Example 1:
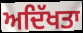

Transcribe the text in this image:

ਅਦਿੱਖਤਾ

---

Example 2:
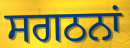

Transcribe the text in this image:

ਸਗਠਨਾਂ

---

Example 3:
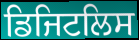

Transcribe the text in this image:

ਡਿਜਿਟਲਿਸ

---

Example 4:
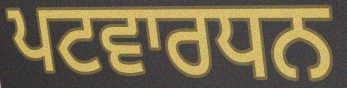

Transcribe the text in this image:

ਪਟਵਾਰਧਨ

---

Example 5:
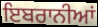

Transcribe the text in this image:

ਇਬਰਾਨੀਆਂ